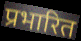
प्रभारित